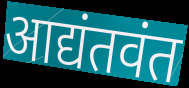
आद्यंतवंत